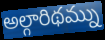
అల్గారిథమ్ను